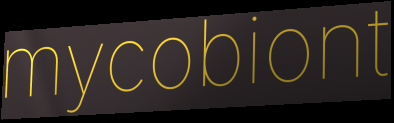
mycobiont